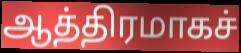
ஆத்திரமாகச்